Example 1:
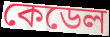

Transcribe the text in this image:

কেডেল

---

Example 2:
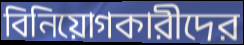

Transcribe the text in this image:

বিনিয়োগকারীদের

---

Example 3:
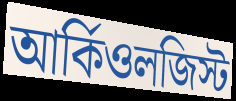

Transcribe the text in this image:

আর্কিওলজিস্ট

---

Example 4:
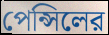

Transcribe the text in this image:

পেন্সিলের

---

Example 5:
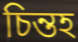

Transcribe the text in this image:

চিন্তহ